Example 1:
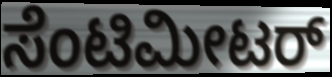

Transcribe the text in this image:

ಸೆಂಟಿಮೀಟರ್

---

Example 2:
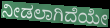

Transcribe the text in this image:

ನೀಡಲಾಗಿದೆಯೇ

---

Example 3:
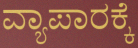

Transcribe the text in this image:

ವ್ಯಾಪಾರಕ್ಕೆ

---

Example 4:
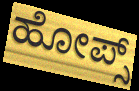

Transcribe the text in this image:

ಹೋಪ್ಸ್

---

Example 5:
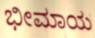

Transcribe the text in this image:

ಭೀಮಾಯ